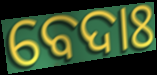
ବେଦାଃ